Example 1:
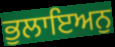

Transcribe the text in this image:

ਭੁਲਾਇਅਨੁ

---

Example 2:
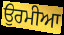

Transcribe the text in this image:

ਉਰਮੀਆ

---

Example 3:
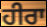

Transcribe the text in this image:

ਹੀਰਾ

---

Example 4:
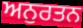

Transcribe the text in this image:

ਅਨੁਰਤਨ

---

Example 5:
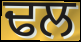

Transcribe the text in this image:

ਢਲ